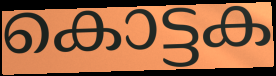
കൊട്ടക